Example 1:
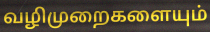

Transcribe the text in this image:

வழிமுறைகளையும்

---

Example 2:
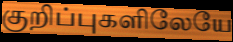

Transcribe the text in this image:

குறிப்புகளிலேயே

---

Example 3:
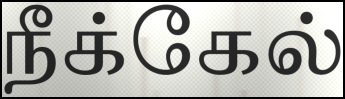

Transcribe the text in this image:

நீக்கேல்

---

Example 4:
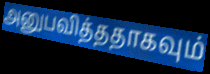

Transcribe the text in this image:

அனுபவித்ததாகவும்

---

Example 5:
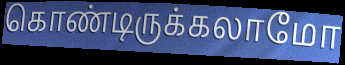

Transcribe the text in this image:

கொண்டிருக்கலாமோ